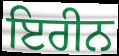
ਇਰੀਨ